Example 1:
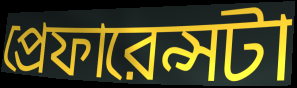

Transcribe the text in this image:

প্রেফারেন্সটা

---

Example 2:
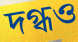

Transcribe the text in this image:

দগ্ধও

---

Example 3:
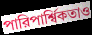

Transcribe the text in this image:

পারিপার্শ্বিকতাও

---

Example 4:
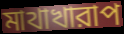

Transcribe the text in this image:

মাথাখারাপ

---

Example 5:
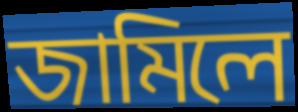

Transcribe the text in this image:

জামিলে